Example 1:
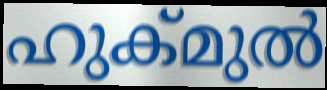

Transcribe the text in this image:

ഹുക്മുൽ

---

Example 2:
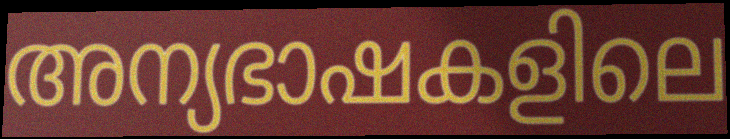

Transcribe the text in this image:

അന്യഭാഷകളിലെ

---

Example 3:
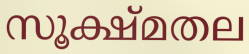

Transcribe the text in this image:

സൂക്ഷ്മതല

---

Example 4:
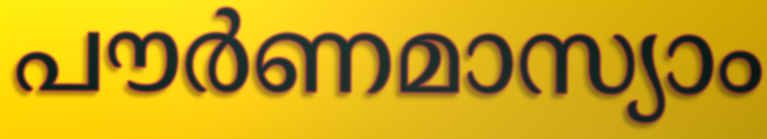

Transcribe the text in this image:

പൗർണമാസ്യാം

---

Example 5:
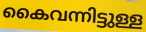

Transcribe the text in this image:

കൈവന്നിട്ടുള്ള